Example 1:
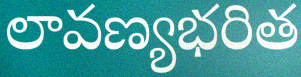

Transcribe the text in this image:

లావణ్యభరిత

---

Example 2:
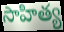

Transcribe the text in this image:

సాహిత్య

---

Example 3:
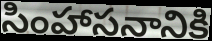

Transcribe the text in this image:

సింహాసనానికి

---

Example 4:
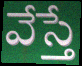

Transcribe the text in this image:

వేస్తే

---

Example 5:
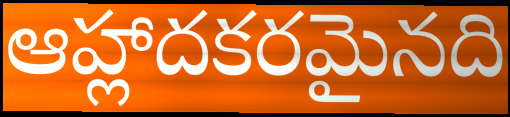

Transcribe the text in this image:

ఆహ్లాదకరమైనది